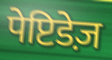
पेप्टिडेज़